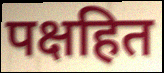
पक्षहित